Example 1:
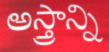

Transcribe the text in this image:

అస్త్రాన్ని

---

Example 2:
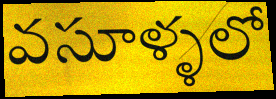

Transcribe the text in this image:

వసూళ్ళలో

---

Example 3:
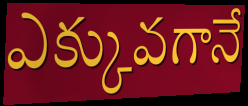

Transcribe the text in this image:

ఎక్కువగానే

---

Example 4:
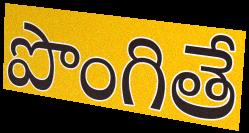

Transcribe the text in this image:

పొంగితే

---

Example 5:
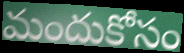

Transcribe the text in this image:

మందుకోసం